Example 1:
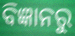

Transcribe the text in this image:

ବିଜ୍ଞାନରୁ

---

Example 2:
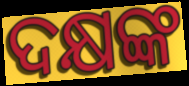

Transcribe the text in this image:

ଦକ୍ଷଙ୍କ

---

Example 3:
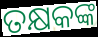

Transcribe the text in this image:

ତକ୍ଷକଙ୍କ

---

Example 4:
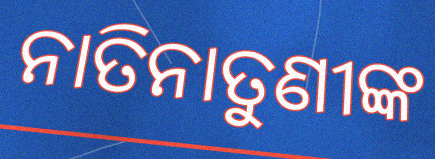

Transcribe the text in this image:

ନାତିନାତୁଣୀଙ୍କ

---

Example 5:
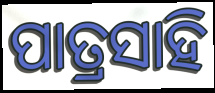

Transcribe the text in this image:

ପାତ୍ରସାହି